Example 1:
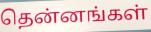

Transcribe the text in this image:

தென்னங்கள்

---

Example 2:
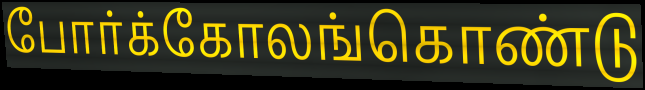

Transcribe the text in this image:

போர்க்கோலங்கொண்டு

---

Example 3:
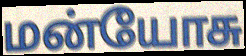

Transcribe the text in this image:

மன்யோசு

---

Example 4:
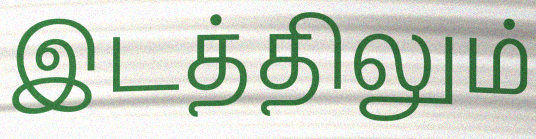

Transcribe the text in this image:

இடத்திலும்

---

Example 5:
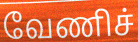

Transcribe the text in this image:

வேணிச்